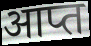
आप्त